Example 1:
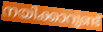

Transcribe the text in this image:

നയിക്കാറുണ്ട്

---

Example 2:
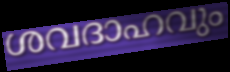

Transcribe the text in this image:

ശവദാഹവും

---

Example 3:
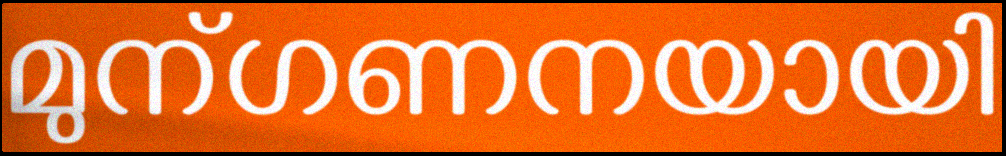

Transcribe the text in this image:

മുന്ഗണനയായി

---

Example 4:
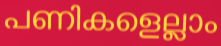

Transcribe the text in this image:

പണികളെല്ലാം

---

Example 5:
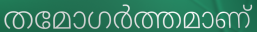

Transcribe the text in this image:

തമോഗർത്തമാണ്